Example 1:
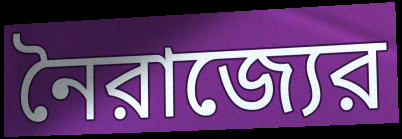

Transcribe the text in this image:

নৈরাজ্যের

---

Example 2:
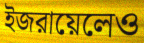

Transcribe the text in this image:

ইজরায়েলেও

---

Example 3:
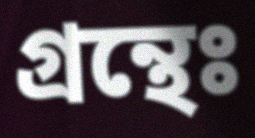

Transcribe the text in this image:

গ্রন্থেঃ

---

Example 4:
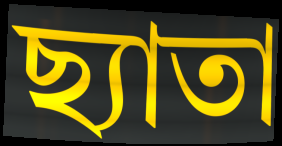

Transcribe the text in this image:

ছ্যাতা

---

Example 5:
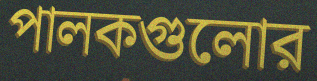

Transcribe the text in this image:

পালকগুলোর